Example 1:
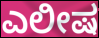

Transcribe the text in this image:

ಎಲೀಷ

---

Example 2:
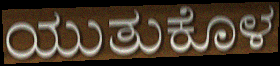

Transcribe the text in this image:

ಯುತುಕೊಳ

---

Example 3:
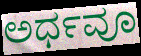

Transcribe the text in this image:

ಅರ್ಧವೂ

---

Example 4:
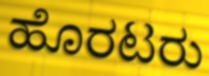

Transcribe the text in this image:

ಹೊರಟರು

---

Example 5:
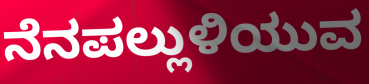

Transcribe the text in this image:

ನೆನಪಲ್ಲುಳಿಯುವ